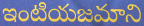
ఇంటియజమాని